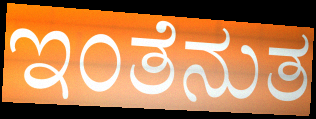
ಇಂತೆನುತ